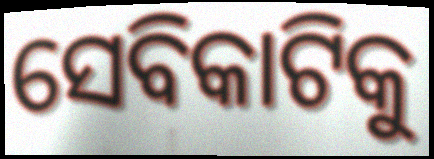
ସେବିକାଟିକୁ